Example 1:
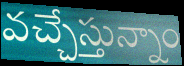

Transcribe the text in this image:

వచ్చేస్తున్నాం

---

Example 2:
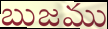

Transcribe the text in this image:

బుజము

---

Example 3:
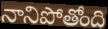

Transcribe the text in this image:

నానిపోతోంది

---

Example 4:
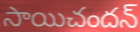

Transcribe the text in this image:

సాయిచందన్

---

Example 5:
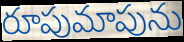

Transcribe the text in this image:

రూపుమాపును